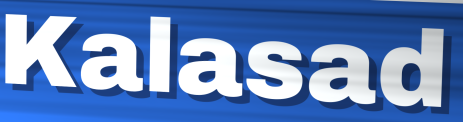
Kalasad